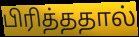
பிரித்ததால்